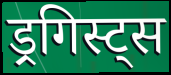
ड्रगिस्ट्स